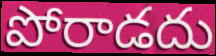
పోరాడదు